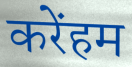
करेंहम